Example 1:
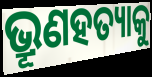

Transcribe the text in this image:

ଭ୍ରୂଣହତ୍ୟାକୁ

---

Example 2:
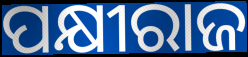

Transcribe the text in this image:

ପକ୍ଷୀରାଜ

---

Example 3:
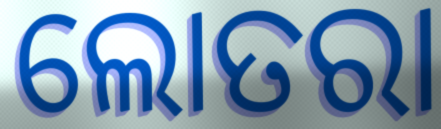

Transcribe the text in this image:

ଲୋତରା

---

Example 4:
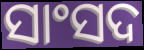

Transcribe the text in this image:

ସାଂସଦ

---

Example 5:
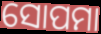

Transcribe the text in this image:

ସୋପମା